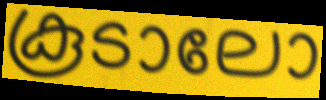
കൂടാലോ